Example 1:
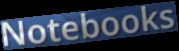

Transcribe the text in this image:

Notebooks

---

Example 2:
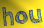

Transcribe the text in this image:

hou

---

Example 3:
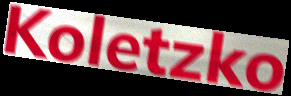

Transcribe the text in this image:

Koletzko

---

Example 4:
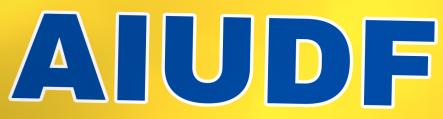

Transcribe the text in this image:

AIUDF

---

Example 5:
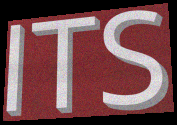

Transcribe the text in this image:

ITS